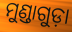
ମୁଣ୍ଡାଗୁଡ଼ା